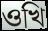
ওখি